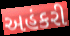
અહંકરી